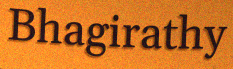
Bhagirathy